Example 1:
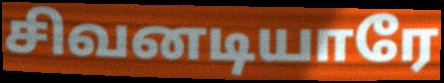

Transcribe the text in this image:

சிவனடியாரே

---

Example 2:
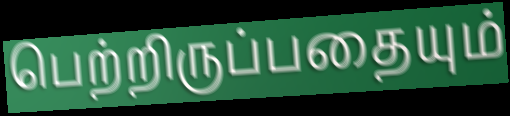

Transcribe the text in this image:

பெற்றிருப்பதையும்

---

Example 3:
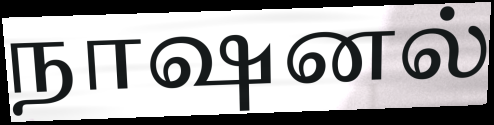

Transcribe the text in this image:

நாஷனல்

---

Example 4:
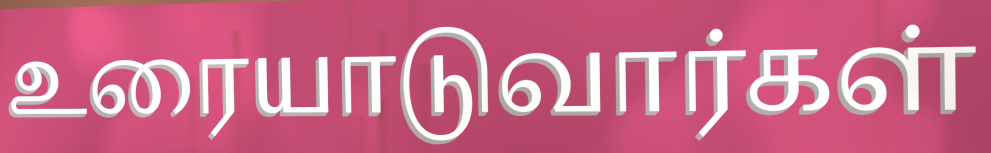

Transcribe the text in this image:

உரையாடுவார்கள்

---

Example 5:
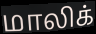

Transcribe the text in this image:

மாலிக்